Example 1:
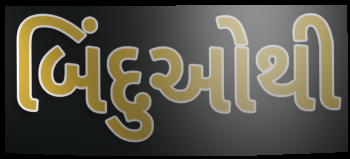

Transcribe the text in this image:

બિંદુઓથી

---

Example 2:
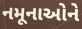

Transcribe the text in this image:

નમૂનાઓને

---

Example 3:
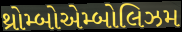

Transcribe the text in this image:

થ્રોમ્બોએમ્બોલિઝમ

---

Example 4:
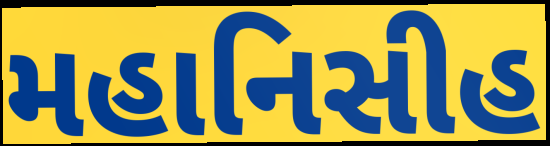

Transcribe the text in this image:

મહાનિસીહ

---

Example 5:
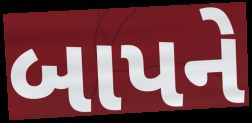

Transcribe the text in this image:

બાપને